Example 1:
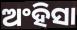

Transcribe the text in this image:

ଅଂହିସା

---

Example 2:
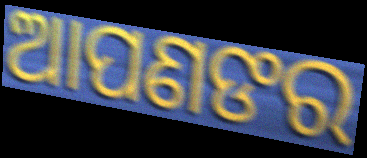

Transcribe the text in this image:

ଆପଣଙର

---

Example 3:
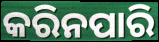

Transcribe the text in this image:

କରିନପାରି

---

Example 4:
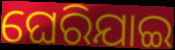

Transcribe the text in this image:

ଘେରିଯାଇ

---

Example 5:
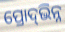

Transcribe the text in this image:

ପ୍ରୋଦ୍‌ଭିନ୍ନ